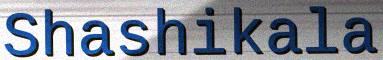
Shashikala